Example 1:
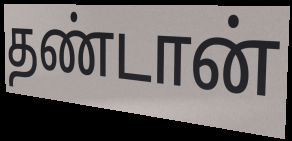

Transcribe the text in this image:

தண்டான்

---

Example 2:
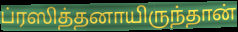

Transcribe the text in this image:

ப்ரஸித்தனாயிருந்தான்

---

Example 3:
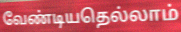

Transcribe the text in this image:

வேண்டியதெல்லாம்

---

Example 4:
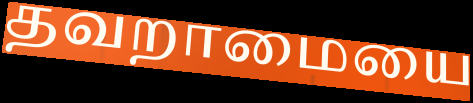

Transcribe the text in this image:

தவறாமையை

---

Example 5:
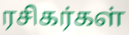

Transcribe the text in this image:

ரசிகர்கள்